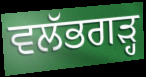
ਵਲੱਭਗੜ੍ਹ